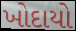
ખોદાયો